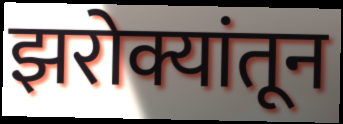
झरोक्यांतून